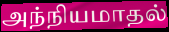
அந்நியமாதல்